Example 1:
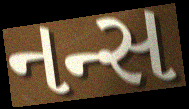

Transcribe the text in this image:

નન્સ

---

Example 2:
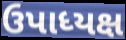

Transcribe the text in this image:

ઉપાધ્યક્ષ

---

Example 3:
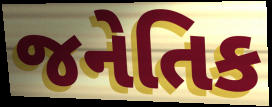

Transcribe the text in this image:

જનેતિક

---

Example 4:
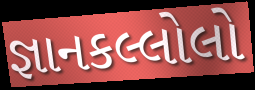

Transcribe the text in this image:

જ્ઞાનકલ્લોલો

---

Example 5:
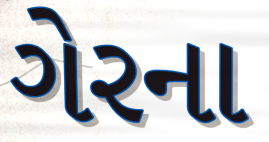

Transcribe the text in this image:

ગેરના